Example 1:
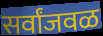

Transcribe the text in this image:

सर्वांजवळ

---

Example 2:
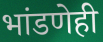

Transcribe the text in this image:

भांडणेही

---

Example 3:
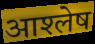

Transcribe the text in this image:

आश्लेष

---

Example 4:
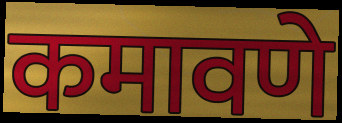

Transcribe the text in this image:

कमावणे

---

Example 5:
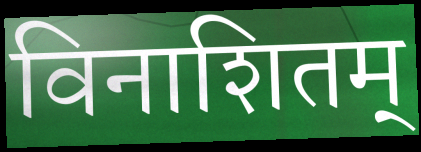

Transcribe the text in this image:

विनाशितम्